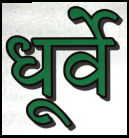
धूर्वे